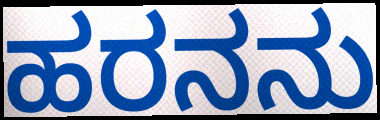
ಹರನನು